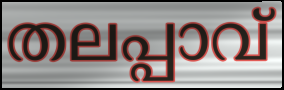
തലപ്പാവ്